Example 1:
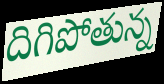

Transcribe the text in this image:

దిగిపోతున్న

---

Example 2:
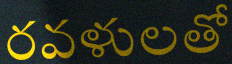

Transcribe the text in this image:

రవళులతో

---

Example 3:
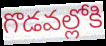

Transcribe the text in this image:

గొడవల్లోకి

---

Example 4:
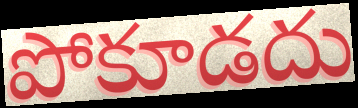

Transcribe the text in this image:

పోకూడదు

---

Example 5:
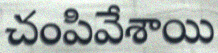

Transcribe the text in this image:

చంపివేశాయి